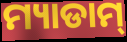
ମ୍ୟାଡାମ୍